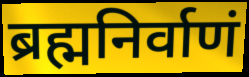
ब्रह्मनिर्वाणं